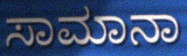
ಸಾಮಾನಾ